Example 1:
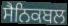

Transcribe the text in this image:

ਸੈਨਿਕਬਲ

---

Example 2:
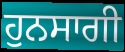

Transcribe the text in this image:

ਹੁਨਸਾਗੀ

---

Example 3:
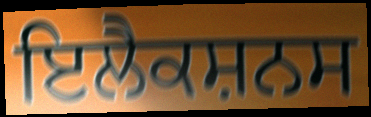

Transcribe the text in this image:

ਇਲੈਕਸ਼ਨਸ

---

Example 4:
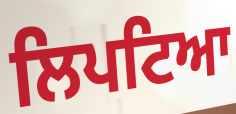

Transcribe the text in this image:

ਲਿਪਟਿਆ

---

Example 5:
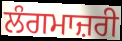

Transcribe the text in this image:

ਲੰਗਮਾਜ਼ਰੀ